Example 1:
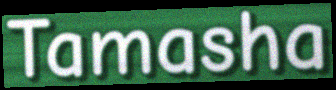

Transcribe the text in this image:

Tamasha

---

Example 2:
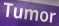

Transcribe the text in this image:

Tumor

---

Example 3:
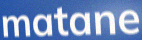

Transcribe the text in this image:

matane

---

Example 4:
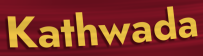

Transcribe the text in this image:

Kathwada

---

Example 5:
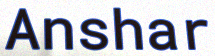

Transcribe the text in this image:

Anshar